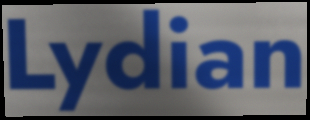
Lydian